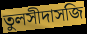
তুলসীদাসজি